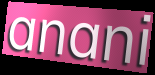
anani